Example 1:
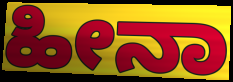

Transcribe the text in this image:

ಹೀನಾ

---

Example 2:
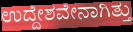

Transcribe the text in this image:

ಉದ್ದೇಶವೇನಾಗಿತ್ತು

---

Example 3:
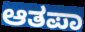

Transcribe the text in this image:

ಆತಪಾ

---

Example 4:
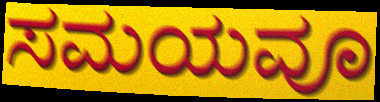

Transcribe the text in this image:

ಸಮಯವೂ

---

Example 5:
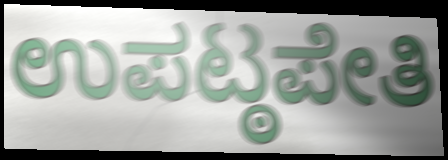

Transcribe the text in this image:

ಉಪಟ್ಠಪೇತಿ